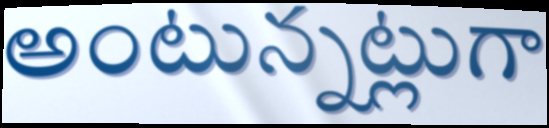
అంటున్నట్లుగా